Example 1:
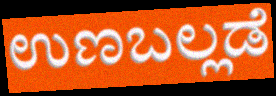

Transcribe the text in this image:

ಉಣಬಲ್ಲಡೆ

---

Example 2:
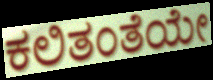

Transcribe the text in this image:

ಕಲಿತಂತೆಯೇ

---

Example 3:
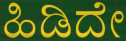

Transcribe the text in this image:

ಹಿಡಿದೇ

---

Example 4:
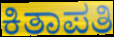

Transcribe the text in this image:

ಕಿತಾಪತಿ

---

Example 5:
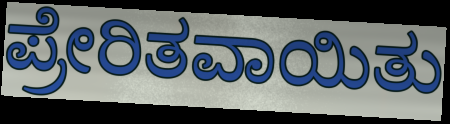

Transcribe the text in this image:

ಪ್ರೇರಿತವಾಯಿತು